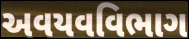
અવયવવિભાગ